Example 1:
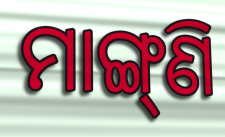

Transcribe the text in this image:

ମାଙ୍ଗ୍‌ଣି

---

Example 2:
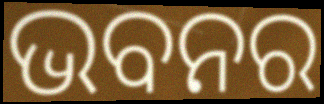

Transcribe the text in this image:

ଭବନର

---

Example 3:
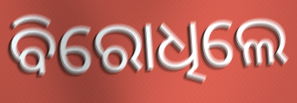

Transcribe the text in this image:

ବିରୋଧିଲେ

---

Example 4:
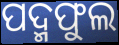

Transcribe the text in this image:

ପଦ୍ମଫୁଲ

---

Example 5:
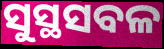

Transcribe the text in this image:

ସୁସ୍ଥସବଳ